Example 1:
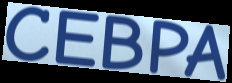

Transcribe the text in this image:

CEBPA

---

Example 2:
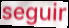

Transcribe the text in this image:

seguir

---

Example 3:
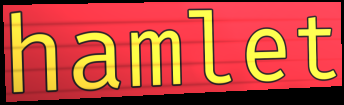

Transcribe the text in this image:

hamlet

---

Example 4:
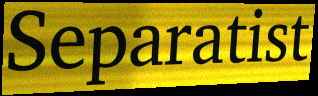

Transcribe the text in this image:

Separatist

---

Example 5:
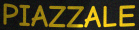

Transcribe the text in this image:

PIAZZALE